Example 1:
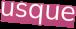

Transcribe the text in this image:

usque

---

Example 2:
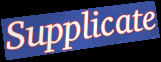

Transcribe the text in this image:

Supplicate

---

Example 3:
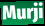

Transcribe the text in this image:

Murji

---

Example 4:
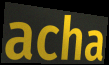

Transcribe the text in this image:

acha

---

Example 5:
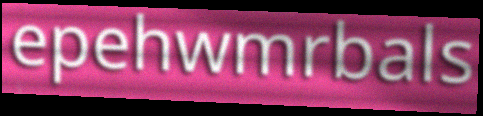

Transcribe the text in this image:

epehwmrbals